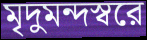
মৃদুমন্দস্বরে